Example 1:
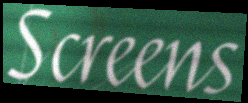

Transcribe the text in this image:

Screens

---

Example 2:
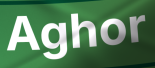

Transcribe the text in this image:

Aghor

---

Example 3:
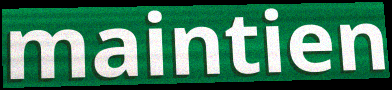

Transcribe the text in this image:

maintien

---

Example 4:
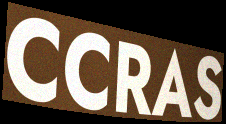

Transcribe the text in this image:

CCRAS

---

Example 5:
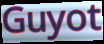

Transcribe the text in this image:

Guyot